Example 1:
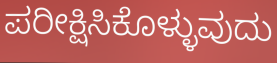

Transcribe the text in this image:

ಪರೀಕ್ಷಿಸಿಕೊಳ್ಳುವುದು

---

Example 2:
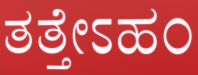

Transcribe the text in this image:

ತತ್ತೇಽಹಂ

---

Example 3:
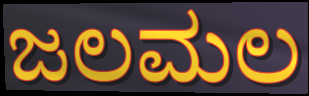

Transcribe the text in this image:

ಜಲಮಲ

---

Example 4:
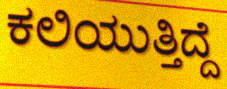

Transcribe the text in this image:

ಕಲಿಯುತ್ತಿದ್ದೆ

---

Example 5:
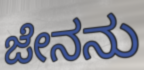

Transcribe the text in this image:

ಜೇನನು